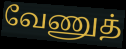
வேணுத்